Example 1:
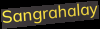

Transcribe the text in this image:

Sangrahalay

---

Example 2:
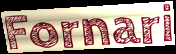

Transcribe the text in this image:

Fornari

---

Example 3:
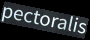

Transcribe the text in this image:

pectoralis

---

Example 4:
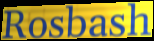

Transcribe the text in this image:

Rosbash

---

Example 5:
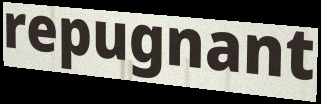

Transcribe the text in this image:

repugnant